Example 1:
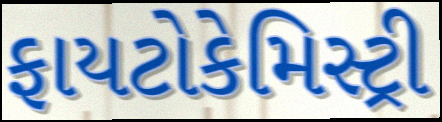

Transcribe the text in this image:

ફાયટોકેમિસ્ટ્રી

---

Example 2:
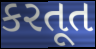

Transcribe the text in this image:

કરતૂત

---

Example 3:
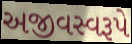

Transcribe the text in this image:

અજીવસ્વરૂપે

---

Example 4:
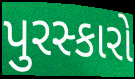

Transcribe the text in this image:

પુરસ્કારો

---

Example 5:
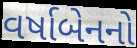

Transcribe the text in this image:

વર્ષાબેનનો